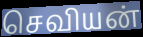
செவியன்